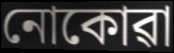
নোকোৱা